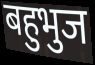
बहुभुज